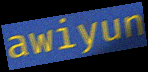
awiyun